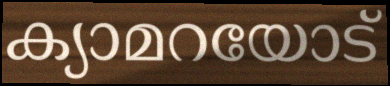
ക്യാമറയോട്